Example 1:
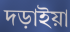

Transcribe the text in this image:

দড়াইয়া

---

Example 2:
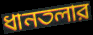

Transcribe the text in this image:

ধানতলার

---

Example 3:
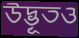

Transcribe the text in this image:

উদ্ভূতও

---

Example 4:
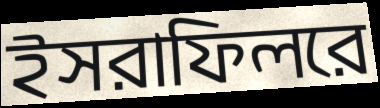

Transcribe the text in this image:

ইসরাফিলরে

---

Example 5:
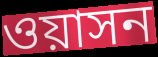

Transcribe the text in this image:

ওয়াসন